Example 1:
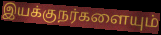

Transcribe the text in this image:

இயக்குநர்களையும்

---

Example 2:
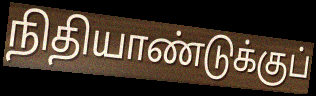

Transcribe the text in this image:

நிதியாண்டுக்குப்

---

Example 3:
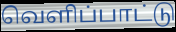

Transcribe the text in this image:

வெளிப்பாட்டு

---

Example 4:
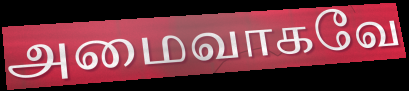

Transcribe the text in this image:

அமைவாகவே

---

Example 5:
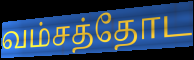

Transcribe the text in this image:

வம்சத்தோட